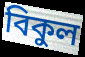
বিকুল